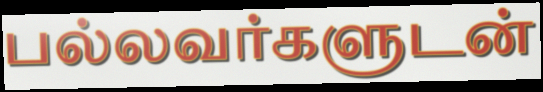
பல்லவர்களுடன்